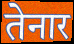
तेनार